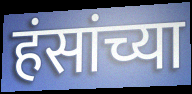
हंसांच्या